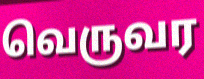
வெருவர